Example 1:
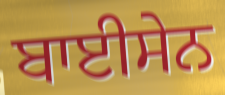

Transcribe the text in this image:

ਬਾਈਸੇਨ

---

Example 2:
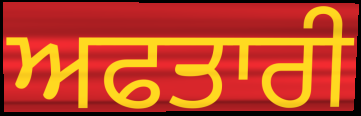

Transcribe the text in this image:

ਅਫਤਾਰੀ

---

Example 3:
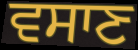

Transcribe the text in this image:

ਵਸਾਣ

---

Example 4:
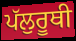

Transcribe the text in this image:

ਪੱਲੁਰੂਥੀ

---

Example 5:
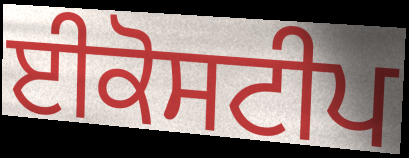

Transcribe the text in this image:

ਈਕੋਸਟੀਪ